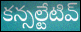
కన్సల్టేటివ్